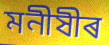
মনীষীৰ